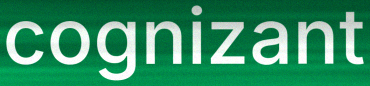
cognizant